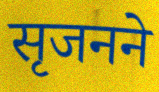
सृजनने